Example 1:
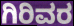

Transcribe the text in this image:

ಗಿರಿವರ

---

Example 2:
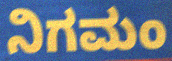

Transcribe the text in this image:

ನಿಗಮಂ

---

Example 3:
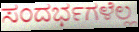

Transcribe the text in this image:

ಸಂದರ್ಭಗಳೆಲ್ಲ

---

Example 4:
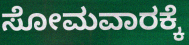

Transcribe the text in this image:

ಸೋಮವಾರಕ್ಕೆ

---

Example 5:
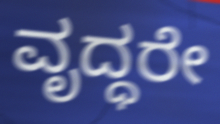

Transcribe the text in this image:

ವೃದ್ಧರೇ